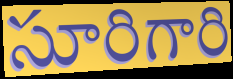
సూరిగారి